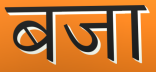
बजा